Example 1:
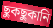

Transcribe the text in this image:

ছুকছুকানি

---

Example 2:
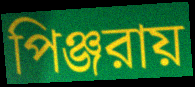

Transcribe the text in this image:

পিঞ্জরায়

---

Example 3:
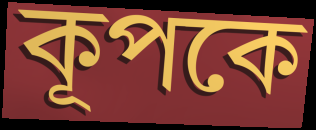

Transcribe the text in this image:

কূপকে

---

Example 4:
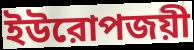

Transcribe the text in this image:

ইউরোপজয়ী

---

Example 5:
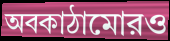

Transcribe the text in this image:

অবকাঠামোরও